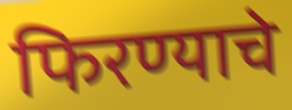
फिरण्याचे